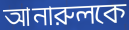
আনারুলকে